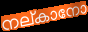
നല്കാനോ